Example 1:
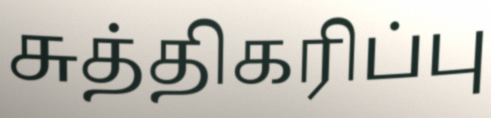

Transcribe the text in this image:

சுத்திகரிப்பு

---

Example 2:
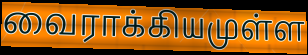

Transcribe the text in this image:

வைராக்கியமுள்ள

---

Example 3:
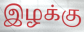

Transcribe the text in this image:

இழக்கு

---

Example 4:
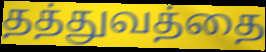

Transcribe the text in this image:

தத்துவத்தை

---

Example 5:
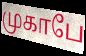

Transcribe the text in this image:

முகாபே